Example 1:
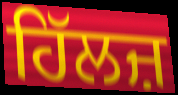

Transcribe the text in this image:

ਹਿੱਲਜ਼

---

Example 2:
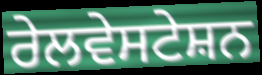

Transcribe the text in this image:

ਰੇਲਵੇਸਟੇਸ਼ਨ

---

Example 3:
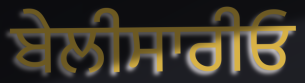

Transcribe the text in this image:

ਬੇਲੀਸਾਰੀਓ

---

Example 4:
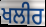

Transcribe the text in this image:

ਖਲੀਰ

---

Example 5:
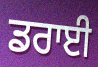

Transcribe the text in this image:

ਡਰਾਈ